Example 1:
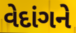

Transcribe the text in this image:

વેદાંગને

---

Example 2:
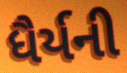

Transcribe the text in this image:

ધૈર્યની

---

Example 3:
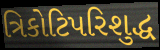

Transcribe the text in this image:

ત્રિકોટિપરિશુદ્ધ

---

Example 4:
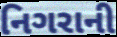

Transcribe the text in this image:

નિગરાની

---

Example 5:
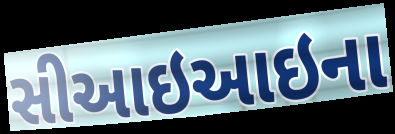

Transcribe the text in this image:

સીઆઇઆઇના